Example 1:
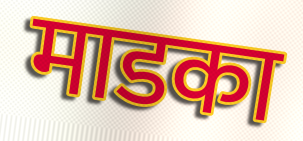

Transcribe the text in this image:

माडका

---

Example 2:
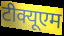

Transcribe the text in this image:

टीक्यूएम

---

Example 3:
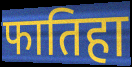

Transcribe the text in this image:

फातिहा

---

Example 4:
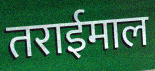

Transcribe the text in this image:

तराईमाल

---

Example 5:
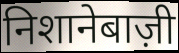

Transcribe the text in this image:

निशानेबाज़ी